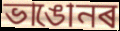
ভাঙোনৰ